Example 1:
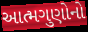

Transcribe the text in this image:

આત્મગુણોનો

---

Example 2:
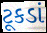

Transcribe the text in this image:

ટૂકડાં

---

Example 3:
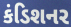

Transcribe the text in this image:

કંડિશનર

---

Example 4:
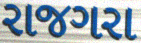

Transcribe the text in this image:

રાજગરા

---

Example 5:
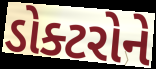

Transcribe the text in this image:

ડોક્ટરોને